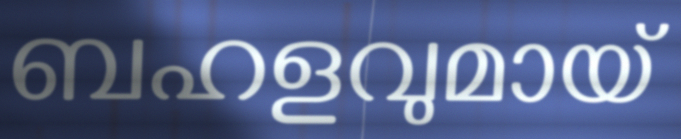
ബഹളവുമായ്